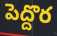
పెద్దొర